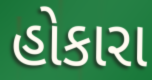
હોકારા